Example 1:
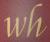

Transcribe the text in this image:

wh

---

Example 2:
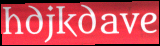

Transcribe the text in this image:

hdjkdave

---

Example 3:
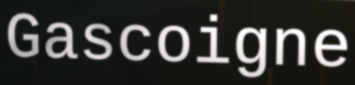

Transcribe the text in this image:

Gascoigne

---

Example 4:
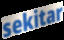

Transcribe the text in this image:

sekitar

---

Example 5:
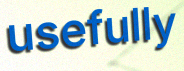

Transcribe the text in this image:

usefully